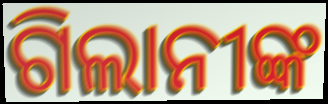
ଗିଲାନୀଙ୍କ